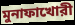
মুনাফাখোরী